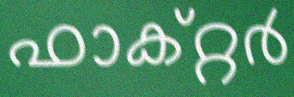
ഫാക്റ്റർ